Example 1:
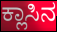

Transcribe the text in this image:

ಕ್ಲಾಸಿನ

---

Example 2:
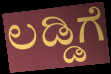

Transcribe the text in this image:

ಲಡ್ಡಿಗೆ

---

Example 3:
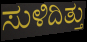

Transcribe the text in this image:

ಸುಳಿದಿತ್ತು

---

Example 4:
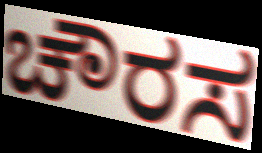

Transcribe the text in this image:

ಚೌರಸ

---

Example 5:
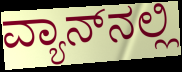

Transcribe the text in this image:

ವ್ಯಾನ್‌ನಲ್ಲಿ